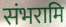
संभरामि